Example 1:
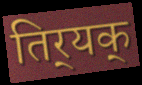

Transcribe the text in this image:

तिर्यक्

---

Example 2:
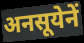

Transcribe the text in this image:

अनसूयेनें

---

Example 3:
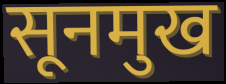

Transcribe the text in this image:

सूनमुख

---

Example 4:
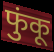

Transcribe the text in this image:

फुंकू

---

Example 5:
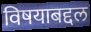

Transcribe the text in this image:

विषयाबद्दल